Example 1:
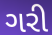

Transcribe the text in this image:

ગરી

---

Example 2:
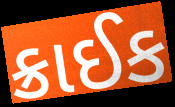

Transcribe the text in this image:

ક્રાઈક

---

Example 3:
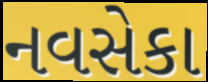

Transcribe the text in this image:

નવસેકા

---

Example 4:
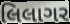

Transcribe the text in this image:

લિલાગર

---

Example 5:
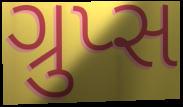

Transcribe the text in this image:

ગ્રુપ્સ